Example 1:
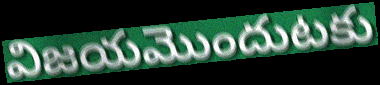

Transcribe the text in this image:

విజయమొందుటకు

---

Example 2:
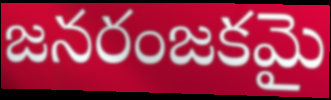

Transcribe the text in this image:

జనరంజకమై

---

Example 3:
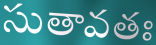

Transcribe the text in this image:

సుతావతః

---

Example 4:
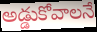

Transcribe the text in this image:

అడ్డుకోవాలనే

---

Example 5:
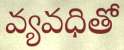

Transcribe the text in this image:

వ్యవధితో